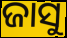
ଜାସୁ